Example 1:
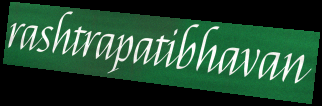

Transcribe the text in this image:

rashtrapatibhavan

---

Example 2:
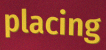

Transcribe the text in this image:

placing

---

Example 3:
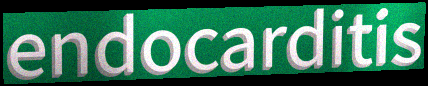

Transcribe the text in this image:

endocarditis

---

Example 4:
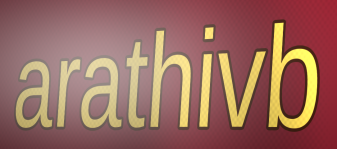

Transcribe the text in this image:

arathivb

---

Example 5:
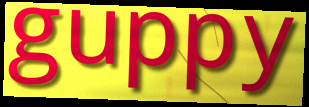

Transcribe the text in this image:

guppy